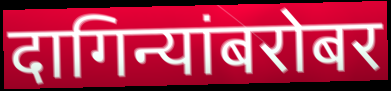
दागिन्यांबरोबर